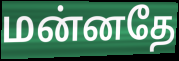
மன்னதே